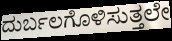
ದುರ್ಬಲಗೊಳಿಸುತ್ತಲೇ